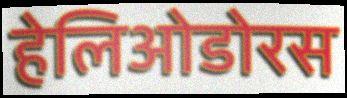
हेलिओडोरस